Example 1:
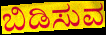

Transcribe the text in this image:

ಬಿಡಿಸುವ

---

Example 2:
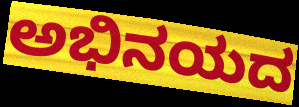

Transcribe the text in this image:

ಅಭಿನಯದ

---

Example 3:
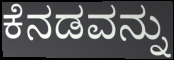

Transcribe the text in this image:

ಕೆನಡವನ್ನು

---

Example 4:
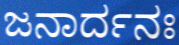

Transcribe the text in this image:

ಜನಾರ್ದನಃ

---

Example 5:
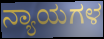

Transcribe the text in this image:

ನ್ಯಾಯಗಳ